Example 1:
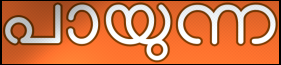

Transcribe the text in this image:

പായുന്ന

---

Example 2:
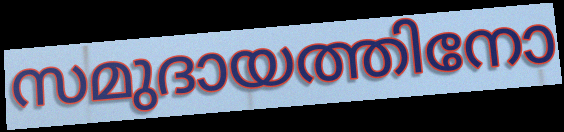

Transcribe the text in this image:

സമുദായത്തിനോ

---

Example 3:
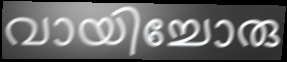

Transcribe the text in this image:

വായിച്ചോരു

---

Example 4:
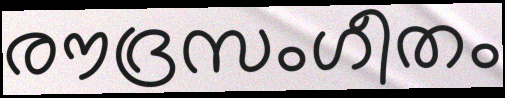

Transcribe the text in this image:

രൗദ്രസംഗീതം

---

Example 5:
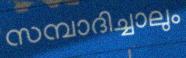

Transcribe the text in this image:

സമ്പാദിച്ചാലും